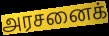
அரசனைக்